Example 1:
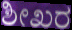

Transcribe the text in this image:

ಶೀಖರ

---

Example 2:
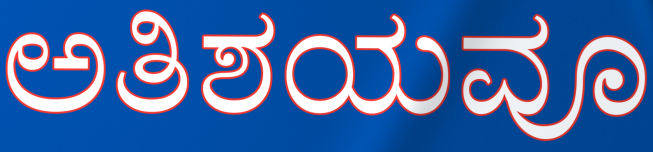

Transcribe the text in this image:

ಅತಿಶಯವೂ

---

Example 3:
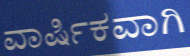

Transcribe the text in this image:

ವಾರ್ಷಿಕವಾಗಿ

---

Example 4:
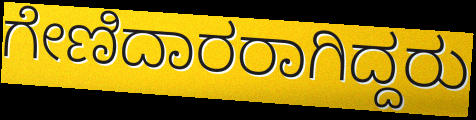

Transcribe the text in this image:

ಗೇಣಿದಾರರಾಗಿದ್ದರು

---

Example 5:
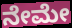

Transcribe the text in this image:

ನೇಮೇ